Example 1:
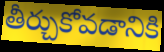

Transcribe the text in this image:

తీర్చుకోవడానికి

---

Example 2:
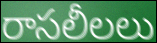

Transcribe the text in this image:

రాసలీలలు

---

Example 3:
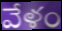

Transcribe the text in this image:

వేళం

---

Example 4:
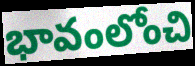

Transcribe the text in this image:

భావంలోంచి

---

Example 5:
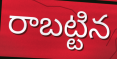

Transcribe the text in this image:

రాబట్టిన